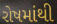
રોષમાંથી